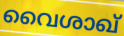
വൈശാഖ്